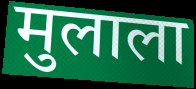
मुलाला